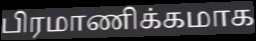
பிரமாணிக்கமாக